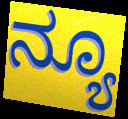
ನ್ಯೂ